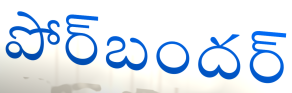
పోర్‌బందర్